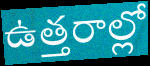
ఉత్తరాల్లో